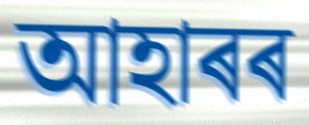
আহাৰৰ